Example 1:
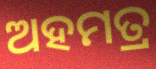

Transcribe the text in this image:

ଅହମତ୍ର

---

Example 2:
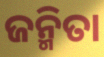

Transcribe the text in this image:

ଜନ୍ମିତା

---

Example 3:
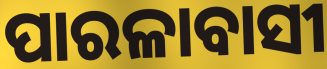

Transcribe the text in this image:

ପାରଳାବାସୀ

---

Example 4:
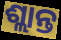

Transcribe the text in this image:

ଶ୍ଲାନ୍ତ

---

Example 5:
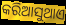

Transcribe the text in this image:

କରିଆସୁଥାଏ